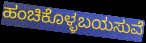
ಹಂಚಿಕೊಳ್ಳಬಯಸುವೆ